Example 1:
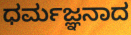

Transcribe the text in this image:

ಧರ್ಮಜ್ಞನಾದ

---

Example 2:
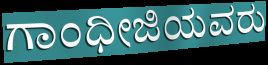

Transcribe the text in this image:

ಗಾಂಧೀಜಿಯವರು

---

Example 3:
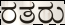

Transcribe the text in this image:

ರತರು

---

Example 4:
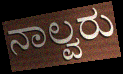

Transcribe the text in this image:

ನಾಲ್ವರು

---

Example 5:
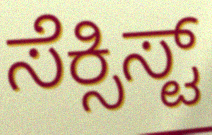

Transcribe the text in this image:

ಸೆಕ್ಸಿಸ್ಟ್